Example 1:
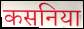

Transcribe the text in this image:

कसनिया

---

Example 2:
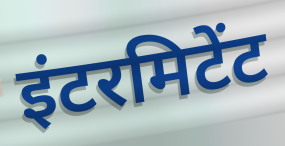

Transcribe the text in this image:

इंटरमिटेंट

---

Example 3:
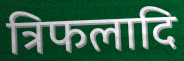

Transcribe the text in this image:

त्रिफलादि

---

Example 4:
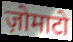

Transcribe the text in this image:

ज़ोमाटो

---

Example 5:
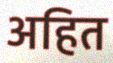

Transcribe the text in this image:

अहित